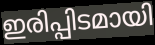
ഇരിപ്പിടമായി